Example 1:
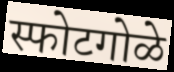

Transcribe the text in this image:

स्फोटगोळे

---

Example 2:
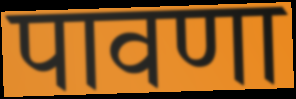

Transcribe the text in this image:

पावणा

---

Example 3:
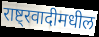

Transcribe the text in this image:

राष्ट्रवादीमधील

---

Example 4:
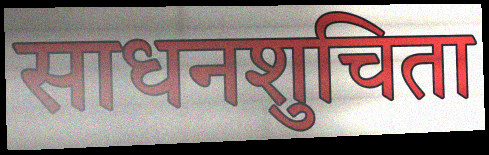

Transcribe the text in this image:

साधनशुचिता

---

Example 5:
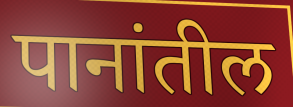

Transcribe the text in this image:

पानांतील